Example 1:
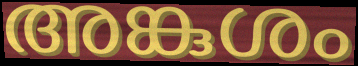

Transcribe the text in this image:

അങ്കുശം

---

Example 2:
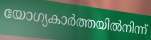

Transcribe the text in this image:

യോഗ്യകാർത്തയിൽനിന്ന്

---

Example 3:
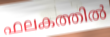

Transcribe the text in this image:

ഫലകത്തിൽ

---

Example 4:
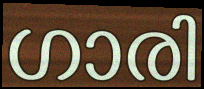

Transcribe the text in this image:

ഗാരി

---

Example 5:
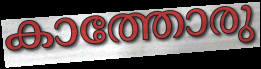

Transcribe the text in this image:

കാത്തോരു